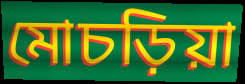
মোচড়িয়া